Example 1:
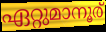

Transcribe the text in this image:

ഏറ്റുമാനൂര്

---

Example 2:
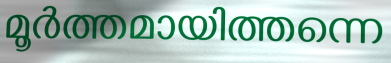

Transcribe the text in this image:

മൂർത്തമായിത്തന്നെ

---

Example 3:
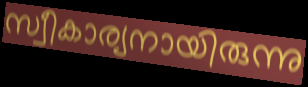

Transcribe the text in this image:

സ്വീകാര്യനായിരുന്നു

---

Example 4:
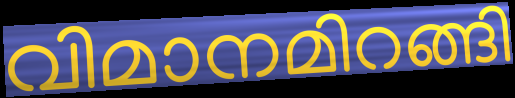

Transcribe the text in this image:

വിമാനമിറങ്ങി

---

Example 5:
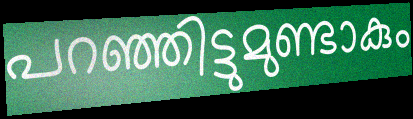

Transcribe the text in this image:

പറഞ്ഞിട്ടുമുണ്ടാകും